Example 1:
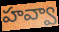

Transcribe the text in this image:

హవ్వా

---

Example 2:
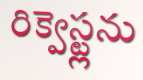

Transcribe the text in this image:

రిక్వెస్ట్లను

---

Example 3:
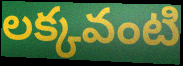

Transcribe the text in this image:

లక్కవంటి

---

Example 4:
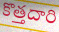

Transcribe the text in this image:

కొత్తదారి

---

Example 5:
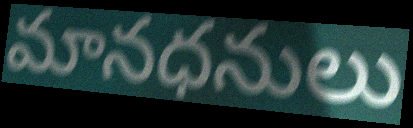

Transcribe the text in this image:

మానధనులు